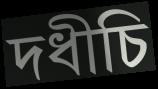
দধীচি